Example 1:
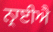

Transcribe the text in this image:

ਨ੍ਰਾਈਐ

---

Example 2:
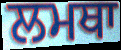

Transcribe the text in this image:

ਲਮਥਾ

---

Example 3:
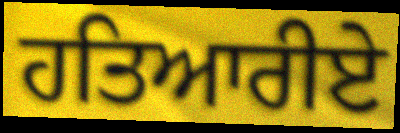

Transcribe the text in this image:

ਹਤਿਆਰੀਏ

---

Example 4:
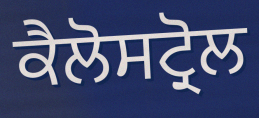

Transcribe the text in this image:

ਕੈਲੋਸਟ੍ਰੋਲ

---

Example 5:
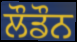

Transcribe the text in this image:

ਲੌਡੌਨ